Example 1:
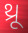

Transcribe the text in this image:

થ્રૂ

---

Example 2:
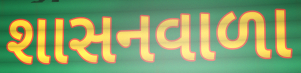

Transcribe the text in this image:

શાસનવાળા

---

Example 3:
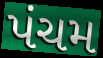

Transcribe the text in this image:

પંચમ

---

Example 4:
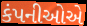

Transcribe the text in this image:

કંપનીઓએ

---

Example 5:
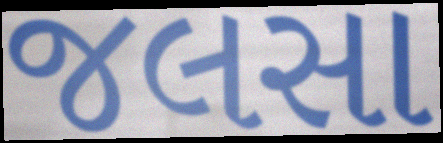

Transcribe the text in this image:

જલસા